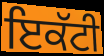
ਇਕੱਟੀ